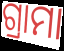
ଗ୍ରାମା